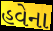
હવેના